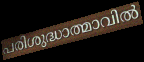
പരിശുദ്ധാത്മാവിൽ